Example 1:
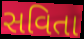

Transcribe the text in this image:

સવિતા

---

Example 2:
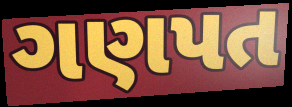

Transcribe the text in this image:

ગણપત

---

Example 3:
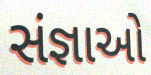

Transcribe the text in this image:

સંજ્ઞાઓ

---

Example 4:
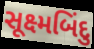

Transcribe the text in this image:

સૂક્ષ્મબિંદુ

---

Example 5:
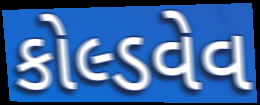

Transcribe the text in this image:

કોલ્ડવેવ